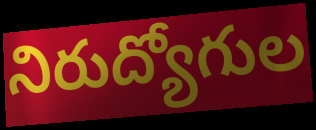
నిరుద్యోగుల